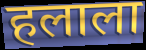
हलाला